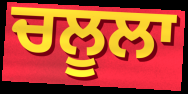
ਚਲੂਲਾ